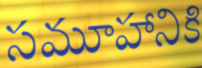
సమూహానికి